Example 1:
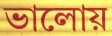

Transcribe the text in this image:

ভালোয়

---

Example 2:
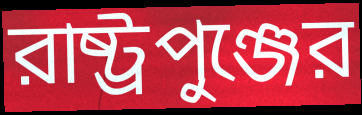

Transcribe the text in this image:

রাষ্ট্রপুঞ্জের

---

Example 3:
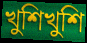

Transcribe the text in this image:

খুশিখুশি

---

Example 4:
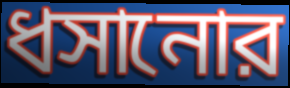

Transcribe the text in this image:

ধসানোর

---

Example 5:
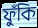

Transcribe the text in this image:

ফুঁকি